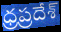
ధ్రప్రదేశ్